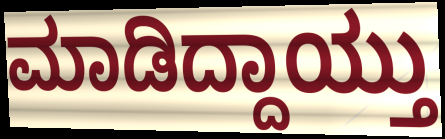
ಮಾಡಿದ್ದಾಯ್ತು